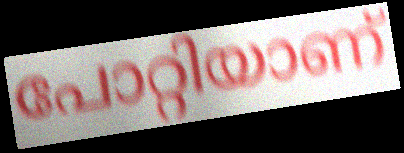
പോറ്റിയാണ്